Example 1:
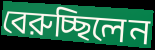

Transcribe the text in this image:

বেরুচ্ছিলেন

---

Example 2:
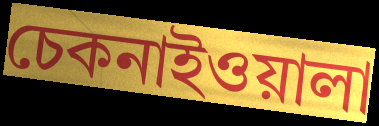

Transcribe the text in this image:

চেকনাইওয়ালা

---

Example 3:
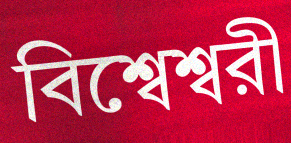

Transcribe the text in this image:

বিশ্বেশ্বরী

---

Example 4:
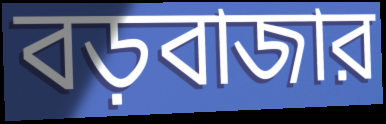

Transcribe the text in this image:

বড়বাজার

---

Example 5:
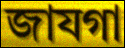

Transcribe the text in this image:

জাযগা